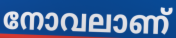
നോവലാണ്